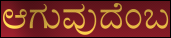
ಆಗುವುದೆಂಬ